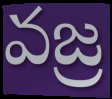
వజ్ర